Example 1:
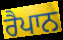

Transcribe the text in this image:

ਰੈਪਾਨ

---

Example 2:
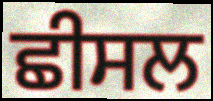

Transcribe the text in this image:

ਛੀਸਲ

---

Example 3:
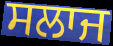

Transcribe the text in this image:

ਸਲਾਜ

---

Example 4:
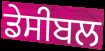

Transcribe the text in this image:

ਡੇਸੀਬਲ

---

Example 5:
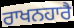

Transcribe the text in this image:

ਰਾਖਨਹਾਰੈ